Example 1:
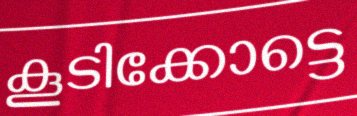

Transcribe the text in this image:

കൂടിക്കോട്ടെ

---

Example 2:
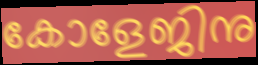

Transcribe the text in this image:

കോളേജിനു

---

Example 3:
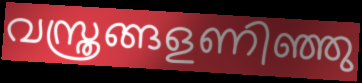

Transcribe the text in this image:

വസ്ത്രങ്ങളണിഞ്ഞു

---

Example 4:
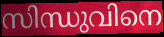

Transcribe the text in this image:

സിന്ധുവിനെ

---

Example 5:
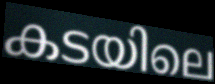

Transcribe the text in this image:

കടയിലെ